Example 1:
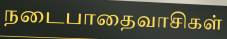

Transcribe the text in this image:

நடைபாதைவாசிகள்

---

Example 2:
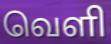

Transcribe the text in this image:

வெளி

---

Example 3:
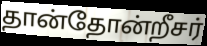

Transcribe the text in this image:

தான்தோன்றீசர்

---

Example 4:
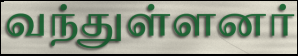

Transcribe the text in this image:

வந்துள்ளனர்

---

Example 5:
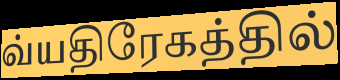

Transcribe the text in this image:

வ்யதிரேகத்தில்